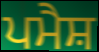
ਪਮੈਸ਼